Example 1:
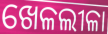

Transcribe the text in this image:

ଖେଳଲୀଳା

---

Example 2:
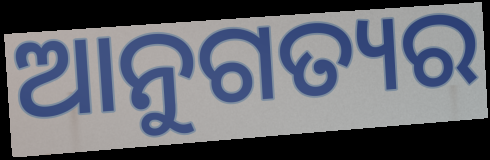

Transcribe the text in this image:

ଆନୁଗତ୍ୟର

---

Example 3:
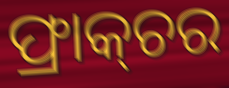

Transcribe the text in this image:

ଫ୍ରାକ୍‌ଚର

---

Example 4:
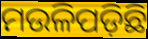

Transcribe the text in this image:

ମଉଳିପଡ଼ିଛି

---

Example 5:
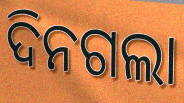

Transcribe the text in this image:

ଦିନଗଲା